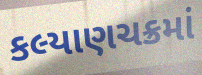
કલ્યાણચક્રમાં